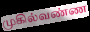
முகில்வண்ண